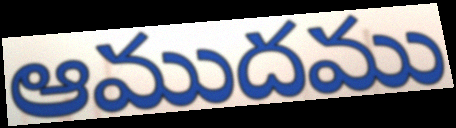
ఆముదము